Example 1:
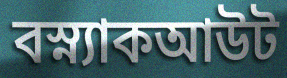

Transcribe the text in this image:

বস্ন্যাকআউট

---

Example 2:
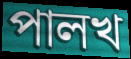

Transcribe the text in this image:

পালখ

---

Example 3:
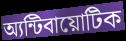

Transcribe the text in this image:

অ্যন্টিবায়োটিক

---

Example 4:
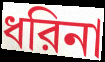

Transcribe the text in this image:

ধরিনা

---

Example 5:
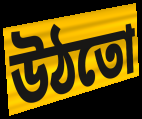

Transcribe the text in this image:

উঠতো